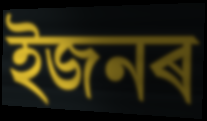
ইজনৰ